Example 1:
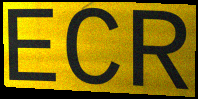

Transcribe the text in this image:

ECR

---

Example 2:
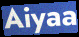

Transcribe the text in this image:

Aiyaa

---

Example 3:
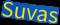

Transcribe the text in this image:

Suvas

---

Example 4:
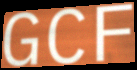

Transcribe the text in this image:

GCF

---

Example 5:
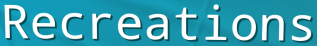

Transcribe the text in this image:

Recreations